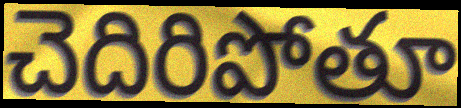
చెదిరిపోతూ